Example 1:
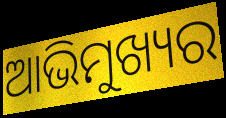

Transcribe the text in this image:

ଆଭିମୁଖ୍ୟର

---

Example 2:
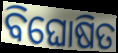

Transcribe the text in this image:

ବିଘୋଷିତ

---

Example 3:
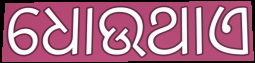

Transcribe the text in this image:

ଧୋଉଥାଏ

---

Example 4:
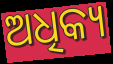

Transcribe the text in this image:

ଅଧିକ୍ୟ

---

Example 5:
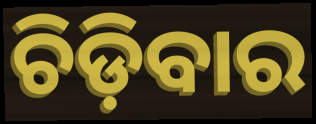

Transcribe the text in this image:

ଚିଡ଼ିବାର